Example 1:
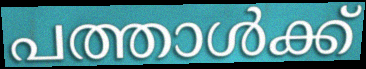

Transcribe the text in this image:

പത്താൾക്ക്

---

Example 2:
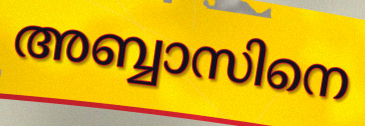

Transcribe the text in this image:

അബ്ബാസിനെ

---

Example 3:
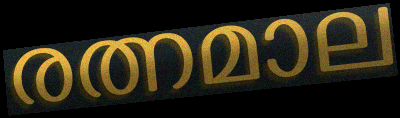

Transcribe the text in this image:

രത്നമാല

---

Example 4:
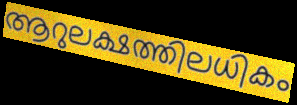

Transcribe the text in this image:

ആറുലക്ഷത്തിലധികം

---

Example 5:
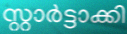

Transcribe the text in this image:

സ്റ്റാർട്ടാക്കി